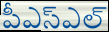
పీఎస్ఎల్